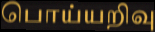
பொய்யறிவு